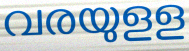
വരയുളള